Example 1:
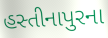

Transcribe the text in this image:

હસ્તીનાપુરના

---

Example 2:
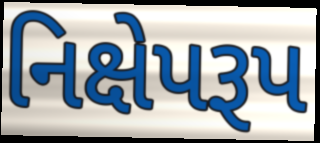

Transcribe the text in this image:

નિક્ષેપરૂપ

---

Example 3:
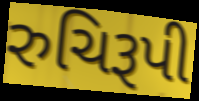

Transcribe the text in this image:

રુચિરૂપી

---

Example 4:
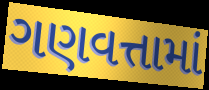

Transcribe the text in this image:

ગણવત્તામાં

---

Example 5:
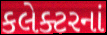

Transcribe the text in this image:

કલેક્ટરનાં